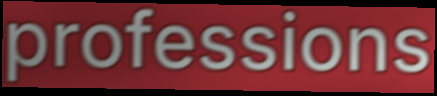
professions